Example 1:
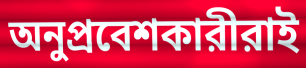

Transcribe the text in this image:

অনুপ্রবেশকারীরাই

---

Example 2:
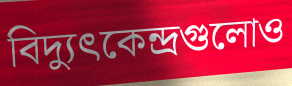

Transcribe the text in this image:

বিদ্যুৎকেন্দ্রগুলোও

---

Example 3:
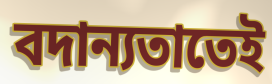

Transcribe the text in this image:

বদান্যতাতেই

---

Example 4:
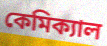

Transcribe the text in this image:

কেমিক্যাল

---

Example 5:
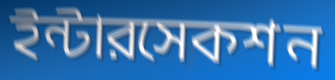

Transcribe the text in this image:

ইন্টারসেকশন